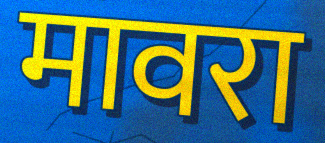
मावरा